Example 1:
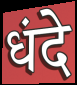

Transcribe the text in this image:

धंदे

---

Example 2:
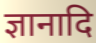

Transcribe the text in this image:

ज्ञानादि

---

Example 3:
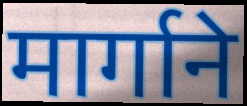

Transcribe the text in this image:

मार्गाने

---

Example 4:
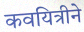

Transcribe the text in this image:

कवयित्रीने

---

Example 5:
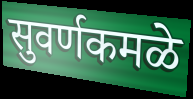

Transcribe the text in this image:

सुवर्णकमळे